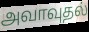
அவாவுதல்